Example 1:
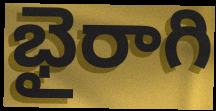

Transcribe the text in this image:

భైరాగి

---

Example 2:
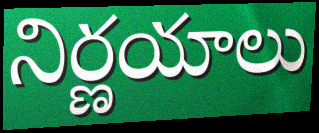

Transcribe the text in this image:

నిర్ణయాలు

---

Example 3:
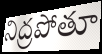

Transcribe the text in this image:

నిద్రపోతూ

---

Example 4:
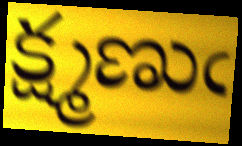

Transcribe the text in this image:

క్ష్మణుఁ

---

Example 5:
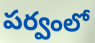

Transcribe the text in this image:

పర్వంలో